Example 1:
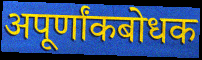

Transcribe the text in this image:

अपूर्णांकबोधक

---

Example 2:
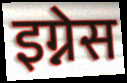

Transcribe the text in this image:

इग्नेस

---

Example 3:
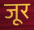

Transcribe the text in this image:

जूर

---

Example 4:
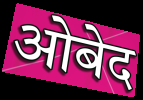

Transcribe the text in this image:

ओबेद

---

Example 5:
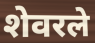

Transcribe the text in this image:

शेवरले